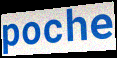
poche